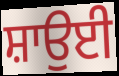
ਸ਼ਾਉਈ